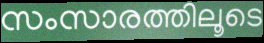
സംസാരത്തിലൂടെ